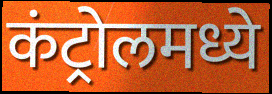
कंट्रोलमध्ये